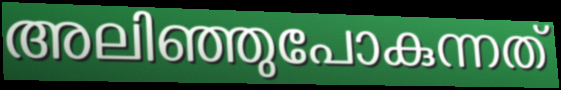
അലിഞ്ഞുപോകുന്നത്